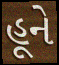
હૂને